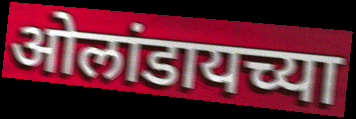
ओलांडायच्या